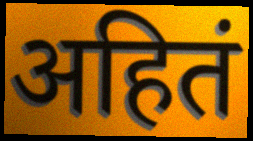
अहितं